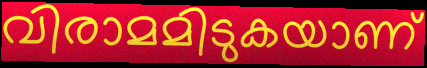
വിരാമമിടുകയാണ്